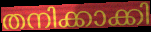
തനിക്കാക്കി